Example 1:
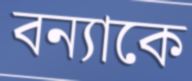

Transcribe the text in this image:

বন্যাকে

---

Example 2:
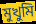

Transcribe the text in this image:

মুখুমি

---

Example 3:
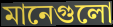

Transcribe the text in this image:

মানেগুলো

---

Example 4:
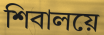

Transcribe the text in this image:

শিবালয়ে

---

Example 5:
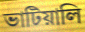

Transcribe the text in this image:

ভাটিয়ালি